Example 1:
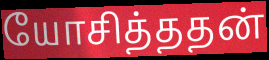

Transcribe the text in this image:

யோசித்ததன்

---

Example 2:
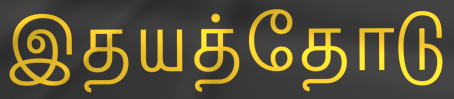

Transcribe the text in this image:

இதயத்தோடு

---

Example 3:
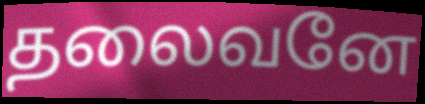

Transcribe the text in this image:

தலைவனே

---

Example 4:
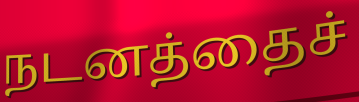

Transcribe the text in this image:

நடனத்தைச்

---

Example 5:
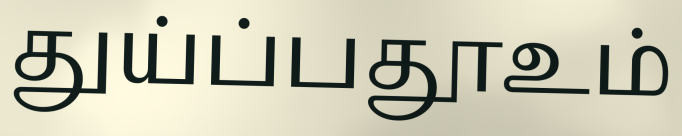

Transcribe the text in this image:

துய்ப்பதூஉம்